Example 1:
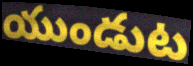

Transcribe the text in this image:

యుండుట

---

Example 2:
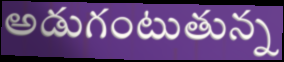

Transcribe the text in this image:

అడుగంటుతున్న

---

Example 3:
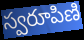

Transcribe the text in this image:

స్వరూపిణి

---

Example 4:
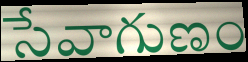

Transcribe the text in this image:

సేవాగుణం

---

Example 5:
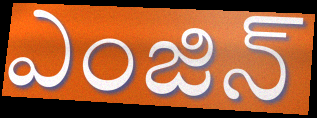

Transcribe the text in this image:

ఎంజిన్